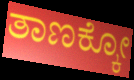
ತಾಣಕ್ಕೋ